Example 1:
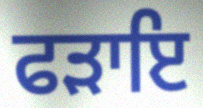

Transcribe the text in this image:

ਫੜਾਇ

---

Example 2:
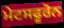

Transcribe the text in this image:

ਮੇਟਸਫੂਰੋਨ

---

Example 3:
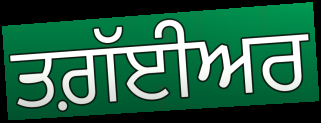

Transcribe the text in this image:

ਤਗ਼ੱਈਅਰ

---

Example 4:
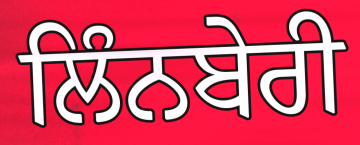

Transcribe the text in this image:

ਲਿੰਨਬੇਰੀ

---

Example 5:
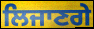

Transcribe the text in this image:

ਲਿਜਾਣਗੇ